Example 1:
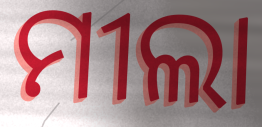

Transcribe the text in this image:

ମୀଲା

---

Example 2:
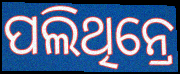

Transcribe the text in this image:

ପଲିଥିନ୍ରେ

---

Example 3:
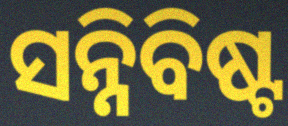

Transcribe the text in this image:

ସନ୍ନିବିଷ୍ଟ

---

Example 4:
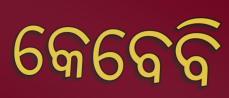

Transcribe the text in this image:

କେବେବି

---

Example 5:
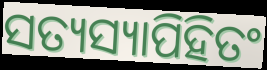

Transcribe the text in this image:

ସତ୍ୟସ୍ୟାପିହିତଂ